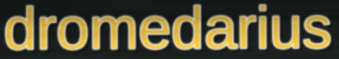
dromedarius